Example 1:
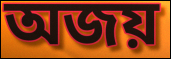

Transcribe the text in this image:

অজয়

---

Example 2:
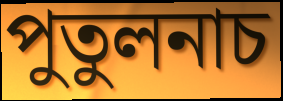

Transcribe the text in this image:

পুতুলনাচ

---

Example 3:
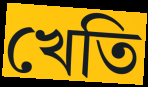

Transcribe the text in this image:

খেতি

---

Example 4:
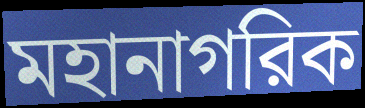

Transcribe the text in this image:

মহানাগরিক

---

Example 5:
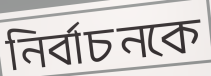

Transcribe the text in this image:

নির্বাচনকে